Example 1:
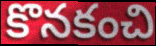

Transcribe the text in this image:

కొనకంచి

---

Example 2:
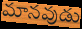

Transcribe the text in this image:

మానవుడు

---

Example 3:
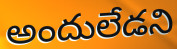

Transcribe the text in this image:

అందులేడని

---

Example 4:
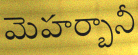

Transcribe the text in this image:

మెహర్బానీ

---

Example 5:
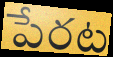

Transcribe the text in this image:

పేరట